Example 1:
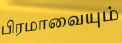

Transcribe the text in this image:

பிரமாவையும்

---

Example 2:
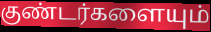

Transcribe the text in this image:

குண்டர்களையும்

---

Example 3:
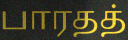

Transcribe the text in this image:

பாரதத்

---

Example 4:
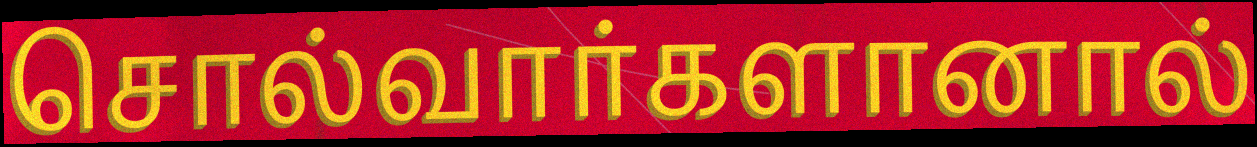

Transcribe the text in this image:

சொல்வார்களானால்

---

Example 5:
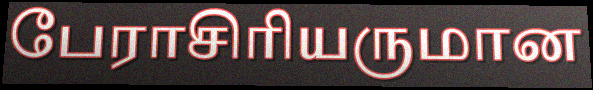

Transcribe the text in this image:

பேராசிரியருமான